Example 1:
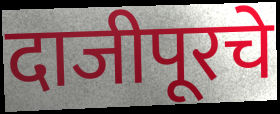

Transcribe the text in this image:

दाजीपूरचे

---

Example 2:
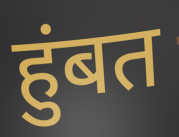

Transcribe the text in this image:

हुंबत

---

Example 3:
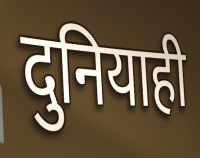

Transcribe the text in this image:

दुनियाही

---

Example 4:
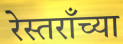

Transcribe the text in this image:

रेस्तराँच्या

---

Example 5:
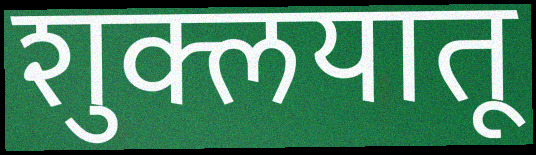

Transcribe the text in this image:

शुक्लयातू